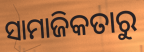
ସାମାଜିକତାରୁ